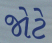
જોટે